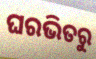
ଘରଭିତରୁ